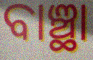
ବାଞ୍ଛା